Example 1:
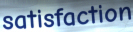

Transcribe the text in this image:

satisfaction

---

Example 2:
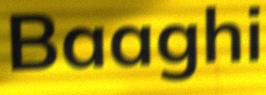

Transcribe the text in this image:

Baaghi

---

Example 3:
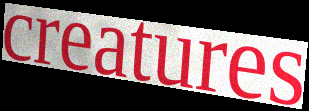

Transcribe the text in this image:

creatures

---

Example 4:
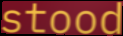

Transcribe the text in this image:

stood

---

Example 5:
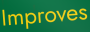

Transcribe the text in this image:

Improves